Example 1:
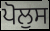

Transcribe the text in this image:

ਪੋਲੁਸ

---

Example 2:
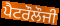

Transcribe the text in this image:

ਪੈਟਰੌਲੌਜੀ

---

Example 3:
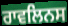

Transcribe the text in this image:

ਰਾਵਲਿਨਸ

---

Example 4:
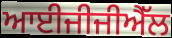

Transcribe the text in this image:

ਆਈਜੀਜੀਐੱਲ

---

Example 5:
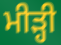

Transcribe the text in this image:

ਮੀੜ੍ਹੀ